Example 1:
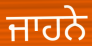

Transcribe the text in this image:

ਜਾਹਨੇ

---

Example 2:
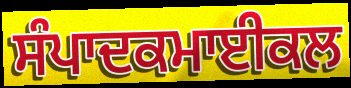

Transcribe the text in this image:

ਸੰਪਾਦਕਮਾਈਕਲ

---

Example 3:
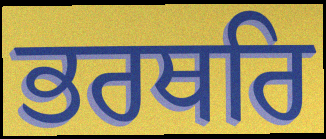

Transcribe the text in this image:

ਭਰਥਰਿ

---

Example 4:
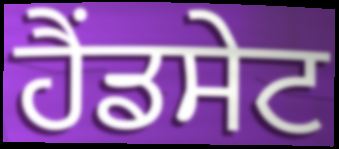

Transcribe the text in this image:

ਹੈਂਡਸੇਟ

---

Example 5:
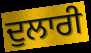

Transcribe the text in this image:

ਦੁਲਾਰੀ